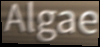
Algae